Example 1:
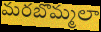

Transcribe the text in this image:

మరబొమ్మలా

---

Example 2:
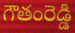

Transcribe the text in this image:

గౌతంరెడ్డి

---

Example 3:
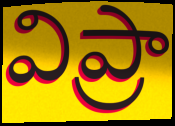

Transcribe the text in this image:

విప్రా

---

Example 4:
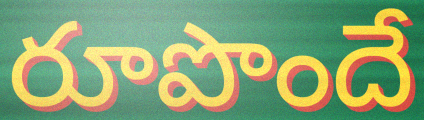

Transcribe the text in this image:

రూపొందే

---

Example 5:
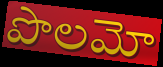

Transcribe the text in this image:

పొలమో